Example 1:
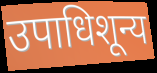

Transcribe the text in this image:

उपाधिशून्य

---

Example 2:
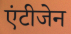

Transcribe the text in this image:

एंटीजेन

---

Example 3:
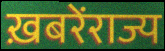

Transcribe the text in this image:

ख़बरेंराज्य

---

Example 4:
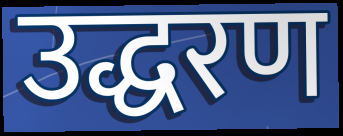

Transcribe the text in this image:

उद्धरण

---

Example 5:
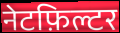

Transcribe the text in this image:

नेटफ़िल्टर